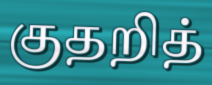
குதறித்